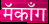
मॅकाँग